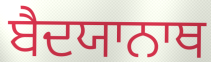
ਬੈਦਯਾਨਾਥ